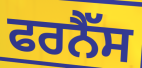
ਫਰਨੈੱਸ